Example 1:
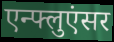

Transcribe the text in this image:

एन्फ्लुएंसर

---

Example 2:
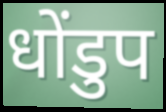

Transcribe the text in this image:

धोंडुप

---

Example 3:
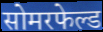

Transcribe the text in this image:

सोमरफेल्ड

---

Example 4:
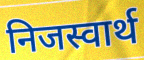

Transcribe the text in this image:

निजस्वार्थ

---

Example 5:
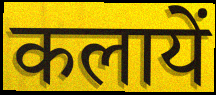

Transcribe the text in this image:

कलायें